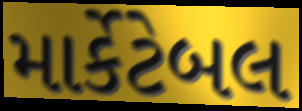
માર્કેટેબલ